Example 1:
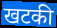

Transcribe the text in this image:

खटकी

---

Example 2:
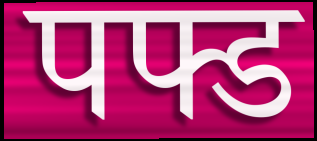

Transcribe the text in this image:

पफ्ड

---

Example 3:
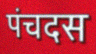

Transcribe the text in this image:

पंचदस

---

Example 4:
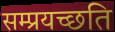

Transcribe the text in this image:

सम्प्रयच्छति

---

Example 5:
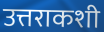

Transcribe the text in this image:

उत्तराकशी